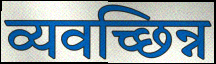
व्यवच्छिन्न